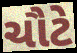
ચૌટે